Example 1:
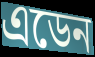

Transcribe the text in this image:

এডেন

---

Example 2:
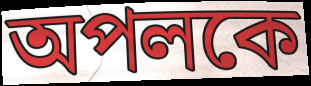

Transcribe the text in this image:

অপলকে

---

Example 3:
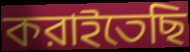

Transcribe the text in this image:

করাইতেছি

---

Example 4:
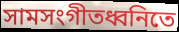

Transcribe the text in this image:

সামসংগীতধ্বনিতে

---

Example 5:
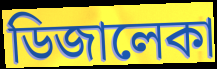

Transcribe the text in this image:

ডিজালেকা